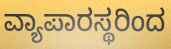
ವ್ಯಾಪಾರಸ್ಥರಿಂದ